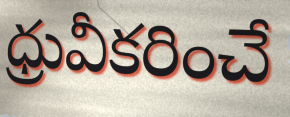
ధ్రువీకరించే